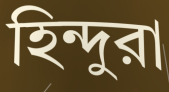
হিন্দুরা